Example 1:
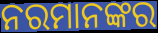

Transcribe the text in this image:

ନରମାନଙ୍କର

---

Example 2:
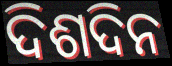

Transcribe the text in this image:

ଦିଶଦିନ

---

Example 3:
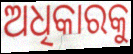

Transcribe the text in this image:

ଅଧିକାରକୁ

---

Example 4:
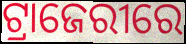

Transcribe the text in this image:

ଟ୍ରାଜେରୀରେ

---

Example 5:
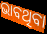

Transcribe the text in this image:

ଭାବଥିବା